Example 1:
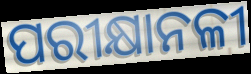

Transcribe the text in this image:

ପରୀକ୍ଷାନଳୀ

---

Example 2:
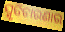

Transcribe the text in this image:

ସ୍ମୃତିଚାରଣାର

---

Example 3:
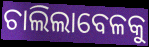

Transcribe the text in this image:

ଚାଲିଲାବେଳକୁ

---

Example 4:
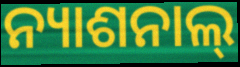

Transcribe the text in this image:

ନ୍ୟାଶନାଲ୍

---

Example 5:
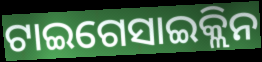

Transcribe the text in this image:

ଟାଇଗେସାଇକ୍ଲିନ